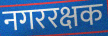
नगररक्षक